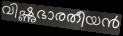
വിഷ്ണുഭാരതീയൻ